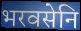
भरवसेनि